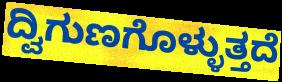
ದ್ವಿಗುಣಗೊಳ್ಳುತ್ತದೆ